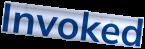
Invoked